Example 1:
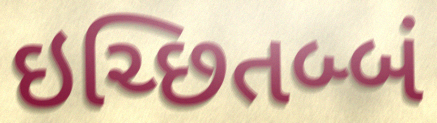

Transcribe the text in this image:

ઇચ્છિતબ્બં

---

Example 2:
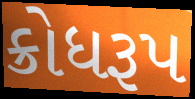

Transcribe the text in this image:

ક્રોધરૂપ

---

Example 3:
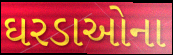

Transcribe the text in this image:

ઘરડાઓના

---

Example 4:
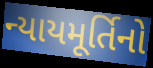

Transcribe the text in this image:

ન્યાયમૂર્તિનો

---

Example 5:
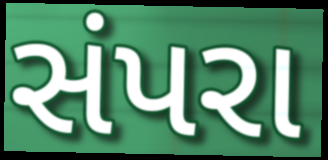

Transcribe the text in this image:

સંપરા